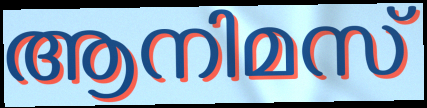
ആനിമസ്